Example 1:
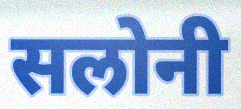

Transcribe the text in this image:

सलोनी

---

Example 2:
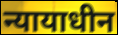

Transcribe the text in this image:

न्यायाधीन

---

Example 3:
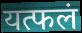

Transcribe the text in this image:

यत्फलं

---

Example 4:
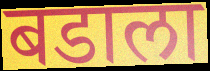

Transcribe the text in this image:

बडाला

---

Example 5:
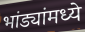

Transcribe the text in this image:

भांड्यांमध्ये